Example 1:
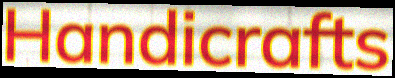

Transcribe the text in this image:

Handicrafts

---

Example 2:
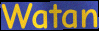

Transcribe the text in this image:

Watan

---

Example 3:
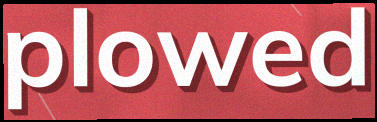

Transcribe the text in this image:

plowed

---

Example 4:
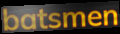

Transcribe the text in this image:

batsmen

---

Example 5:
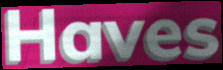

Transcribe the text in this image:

Haves